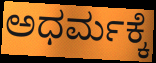
ಅಧರ್ಮಕ್ಕೆ